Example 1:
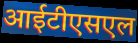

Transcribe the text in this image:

आईटीएसएल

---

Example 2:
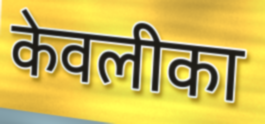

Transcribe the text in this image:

केवलीका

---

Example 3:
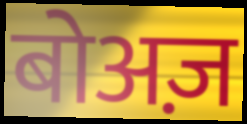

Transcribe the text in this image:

बोअज़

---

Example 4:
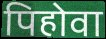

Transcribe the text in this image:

पिहोवा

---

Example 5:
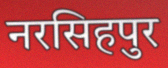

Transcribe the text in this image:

नरसिहपुर